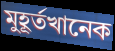
মুহূর্তখানেক